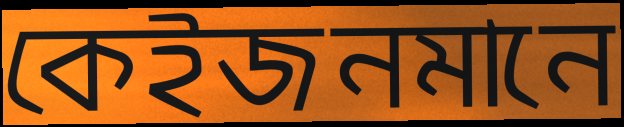
কেইজনমানে